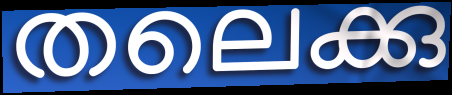
തലെക്കു